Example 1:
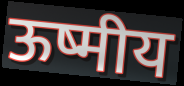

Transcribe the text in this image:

ऊष्मीय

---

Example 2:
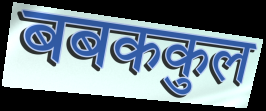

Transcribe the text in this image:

बबककुल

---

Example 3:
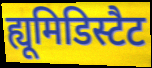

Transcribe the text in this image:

ह्यूमिडिस्टैट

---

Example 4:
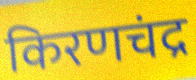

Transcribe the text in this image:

किरणचंद्र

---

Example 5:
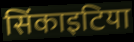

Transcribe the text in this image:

सिंकाइटिया